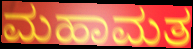
ಮಹಾಮತ